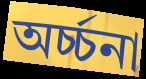
অর্চ্চনা